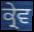
ਕ੍ਰੇਵ